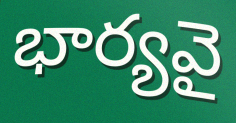
భార్యవై